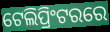
ଟେଲିପ୍ରିଂଟରରେ